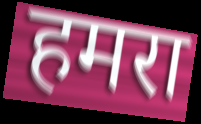
हमरा